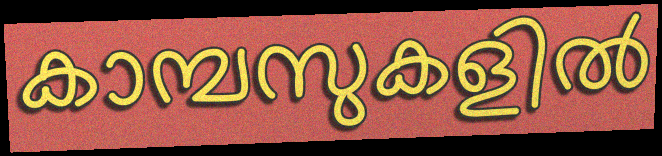
കാമ്പസുകളിൽ